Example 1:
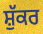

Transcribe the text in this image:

ਸ਼ੁੱਕਰ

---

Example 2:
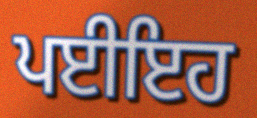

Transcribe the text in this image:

ਪਈਇਹ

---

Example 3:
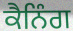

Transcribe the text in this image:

ਕੈਨਿੰਗ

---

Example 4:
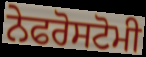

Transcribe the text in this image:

ਨੇਫਰੋਸਟੋਮੀ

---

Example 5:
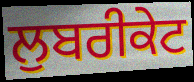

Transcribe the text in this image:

ਲੁਬਰੀਕੇਟ